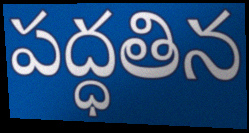
పద్ధతిన